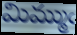
మిమ్ముఁ